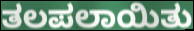
ತಲಪಲಾಯಿತು